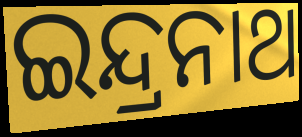
ଇନ୍ଦ୍ରନାଥ